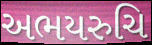
અભયરુચિ